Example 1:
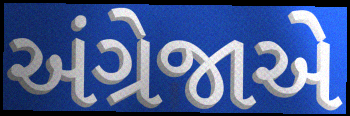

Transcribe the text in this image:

અંગ્રેજાએ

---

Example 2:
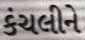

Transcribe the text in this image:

કંચલીને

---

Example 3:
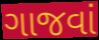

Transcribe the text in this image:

ગાજવાં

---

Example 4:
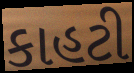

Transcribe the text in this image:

કાહટી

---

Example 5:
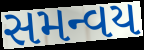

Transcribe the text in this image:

સમન્વય